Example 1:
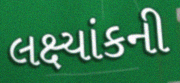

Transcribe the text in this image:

લક્ષ્યાંકની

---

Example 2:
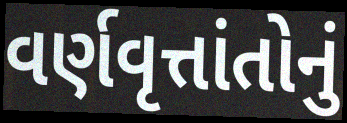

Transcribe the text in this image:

વર્ણવૃત્તાંતોનું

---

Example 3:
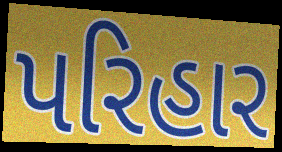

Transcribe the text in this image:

પરિહાર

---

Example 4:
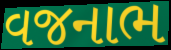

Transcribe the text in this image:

વજનાભ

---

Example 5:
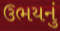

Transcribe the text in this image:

ઉભયનું